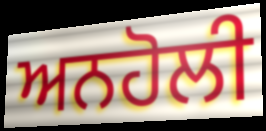
ਅਨਹੋਲੀ